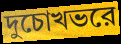
দুচোখভরে